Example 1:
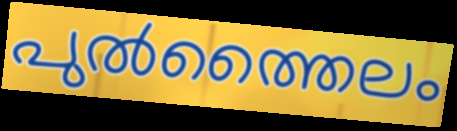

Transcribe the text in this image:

പുൽത്തൈലം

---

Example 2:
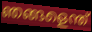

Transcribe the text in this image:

ഞങ്ങളെന്ത്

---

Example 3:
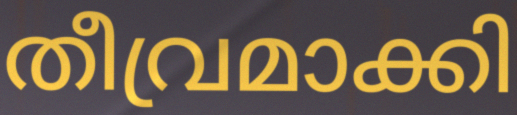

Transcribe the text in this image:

തീവ്രമാക്കി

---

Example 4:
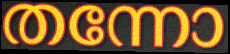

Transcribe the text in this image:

തന്നോ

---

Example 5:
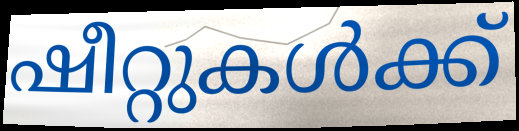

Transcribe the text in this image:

ഷീറ്റുകൾക്ക്